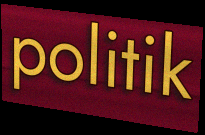
politik